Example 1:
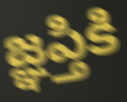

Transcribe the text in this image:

జ్ఞప్తికి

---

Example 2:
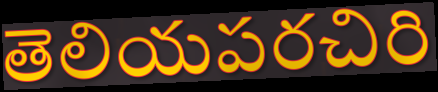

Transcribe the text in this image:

తెలియపరచిరి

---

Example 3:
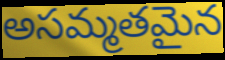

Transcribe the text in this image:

అసమ్మతమైన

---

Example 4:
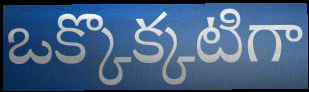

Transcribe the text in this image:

ఒక్కొక్కటిగా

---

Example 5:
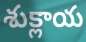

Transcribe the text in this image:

శుక్లాయ